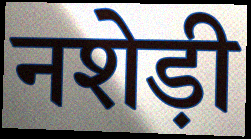
नशेड़ी